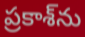
ప్రకాశ్‌ను